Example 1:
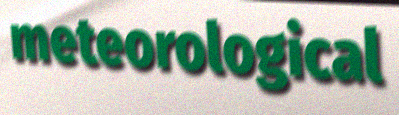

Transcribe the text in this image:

meteorological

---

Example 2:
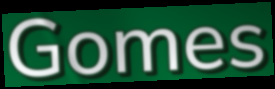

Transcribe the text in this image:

Gomes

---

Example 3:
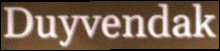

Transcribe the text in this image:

Duyvendak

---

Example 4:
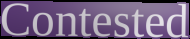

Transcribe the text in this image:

Contested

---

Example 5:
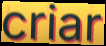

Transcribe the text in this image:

criar